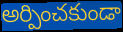
అర్పించకుండా